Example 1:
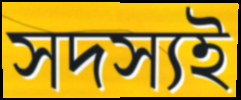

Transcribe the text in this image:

সদস্যই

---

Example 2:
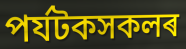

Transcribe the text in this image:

পৰ্যটকসকলৰ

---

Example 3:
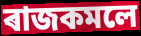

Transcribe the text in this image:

ৰাজকমলে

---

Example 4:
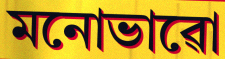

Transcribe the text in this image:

মনোভাৱো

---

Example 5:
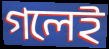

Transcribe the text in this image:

গলেই